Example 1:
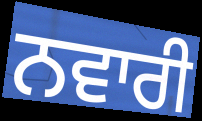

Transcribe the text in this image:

ਨਵਾਰੀ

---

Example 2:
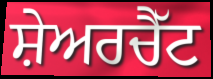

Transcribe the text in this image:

ਸ਼ੇਅਰਚੈੱਟ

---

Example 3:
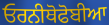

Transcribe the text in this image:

ਓਰਨੀਥੋਫੋਬੀਆ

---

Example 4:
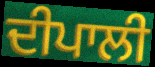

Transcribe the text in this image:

ਦੀਪਾਲੀ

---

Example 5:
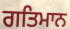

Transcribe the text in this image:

ਗਤਿਮਾਨ